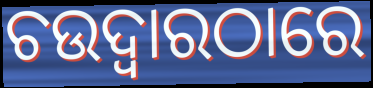
ଚଉଦ୍ଵାରଠାରେ